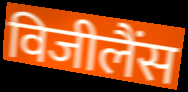
विजीलैंस